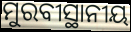
ମୁରବୀସ୍ଥାନୀୟ